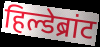
हिल्डेब्रांट